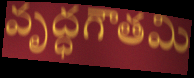
వృద్ధగౌతమి